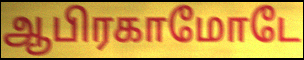
ஆபிரகாமோடே